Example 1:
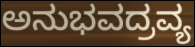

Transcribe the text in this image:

ಅನುಭವದ್ರವ್ಯ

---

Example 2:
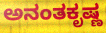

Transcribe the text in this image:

ಅನಂತಕೃಷ್ಣ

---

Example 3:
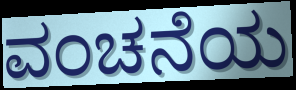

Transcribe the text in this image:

ವಂಚನೆಯ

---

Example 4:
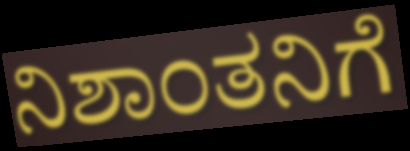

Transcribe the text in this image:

ನಿಶಾಂತನಿಗೆ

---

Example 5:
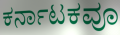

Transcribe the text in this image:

ಕರ್ನಾಟಕವೂ